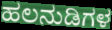
ಹಲನುಡಿಗಳ